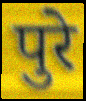
पुरे